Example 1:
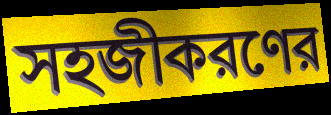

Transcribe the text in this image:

সহজীকরণের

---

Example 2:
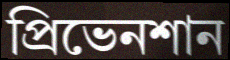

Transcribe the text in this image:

প্রিভেনশান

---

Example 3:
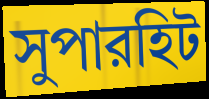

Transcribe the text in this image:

সুপারহিট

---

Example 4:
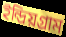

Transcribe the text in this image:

ইন্দ্রিয়গ্রাম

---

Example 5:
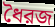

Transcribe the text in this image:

ধৈরজ